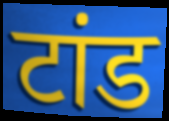
टांड